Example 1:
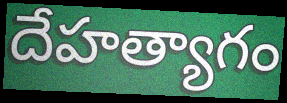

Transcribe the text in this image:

దేహత్యాగం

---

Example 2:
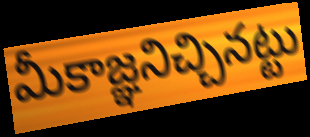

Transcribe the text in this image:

మీకాజ్ఞనిచ్చినట్టు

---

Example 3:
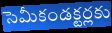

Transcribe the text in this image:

సెమీకండక్టర్లకు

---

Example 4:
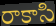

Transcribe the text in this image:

రాకాసి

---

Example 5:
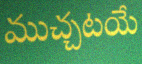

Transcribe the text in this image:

ముచ్చటయే